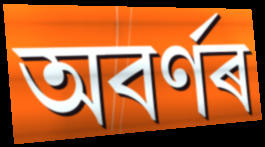
অবৰ্ণৰ